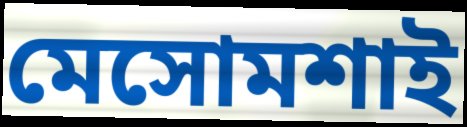
মেসোমশাই